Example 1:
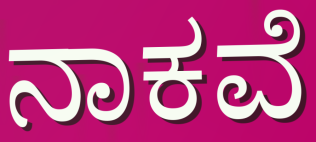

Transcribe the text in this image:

ನಾಕವೆ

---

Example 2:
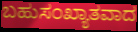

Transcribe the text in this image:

ಬಹುಸಂಖ್ಯಾತವಾದ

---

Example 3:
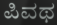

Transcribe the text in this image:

ಪಿವಥ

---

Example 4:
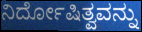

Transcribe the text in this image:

ನಿರ್ದೋಷಿತ್ವವನ್ನು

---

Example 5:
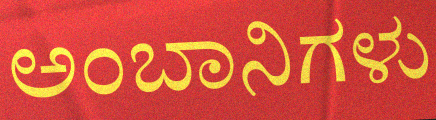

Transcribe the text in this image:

ಅಂಬಾನಿಗಳು